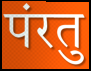
पंरतु